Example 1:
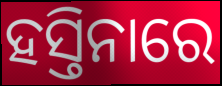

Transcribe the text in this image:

ହସ୍ତିନାରେ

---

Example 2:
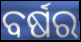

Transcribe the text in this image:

ବର୍ଷର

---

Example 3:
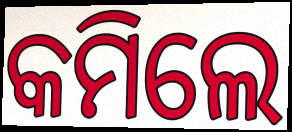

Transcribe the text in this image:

କମିଲେ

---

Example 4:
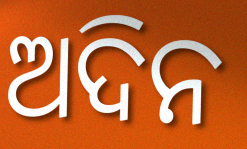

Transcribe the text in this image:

ଅଦିନ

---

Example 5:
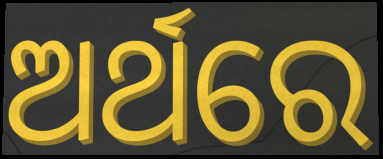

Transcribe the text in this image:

ଅର୍ଥରେ